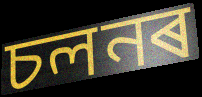
চলনৰ